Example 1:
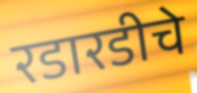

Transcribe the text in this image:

रडारडीचे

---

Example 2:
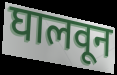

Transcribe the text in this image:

घालवून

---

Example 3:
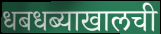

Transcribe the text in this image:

धबधब्याखालची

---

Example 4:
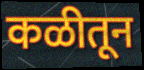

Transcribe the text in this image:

कळीतून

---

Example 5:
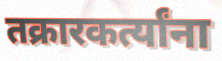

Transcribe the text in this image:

तक्रारकर्त्यांना